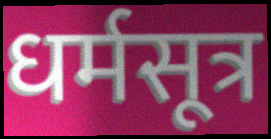
धर्मसूत्र